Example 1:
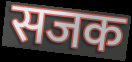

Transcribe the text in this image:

सजक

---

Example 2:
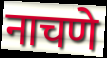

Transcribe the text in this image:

नाचणे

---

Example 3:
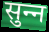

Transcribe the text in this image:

सुन्‍न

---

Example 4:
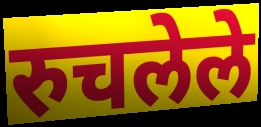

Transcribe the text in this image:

रुचलेले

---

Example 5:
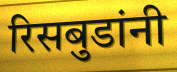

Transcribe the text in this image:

रिसबुडांनी